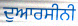
ਦੁਆਰਸੀਨੀ